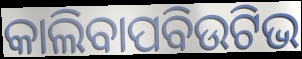
କାଲିବାପବିଉଟିଭ